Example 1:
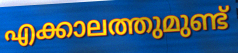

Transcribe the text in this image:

എക്കാലത്തുമുണ്ട്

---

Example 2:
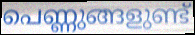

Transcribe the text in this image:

പെണ്ണുങ്ങളുണ്ട്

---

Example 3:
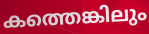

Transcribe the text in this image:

കത്തെങ്കിലും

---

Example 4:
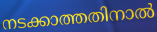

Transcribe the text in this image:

നടക്കാത്തതിനാൽ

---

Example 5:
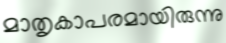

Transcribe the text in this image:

മാതൃകാപരമായിരുന്നു